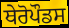
ਥੇਰੋਪੌਡਸ